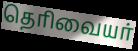
தெரிவையர்